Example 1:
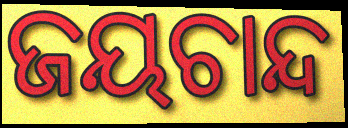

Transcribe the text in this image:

ଜୟଚାନ୍ଦ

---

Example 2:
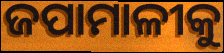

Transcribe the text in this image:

ଜପାମାଳୀକୁ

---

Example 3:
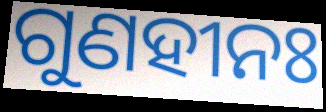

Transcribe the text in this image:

ଗୁଣହୀନଃ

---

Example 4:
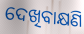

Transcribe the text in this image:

ଦେଖିବାକ୍ଷଣି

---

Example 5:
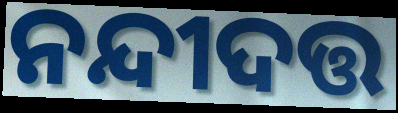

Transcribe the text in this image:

ନନ୍ଦୀଦତ୍ତ